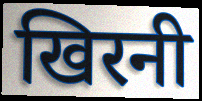
खिरनी